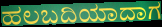
ಹಲಬದಿಯಾದಾಗ